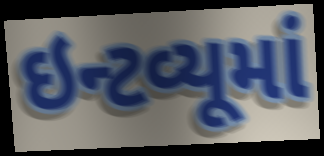
ઇન્ટવ્યૂમાં